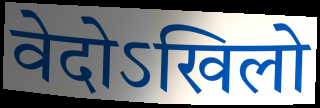
वेदोऽखिलो